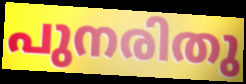
പുനരിതു